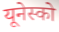
यूनेस्को